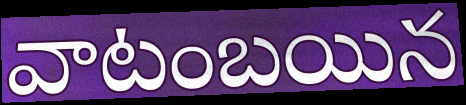
వాటంబయిన